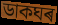
ডাকঘৰ